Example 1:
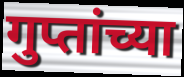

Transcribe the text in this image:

गुप्तांच्या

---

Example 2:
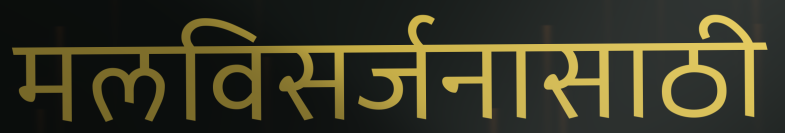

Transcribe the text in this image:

मलविसर्जनासाठी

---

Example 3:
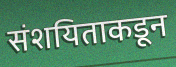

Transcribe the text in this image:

संशयिताकडून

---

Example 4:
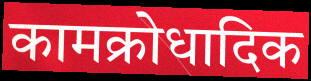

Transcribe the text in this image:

कामक्रोधादिक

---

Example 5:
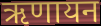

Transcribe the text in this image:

ऋणायन